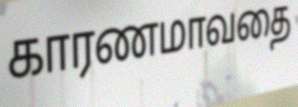
காரணமாவதை